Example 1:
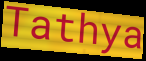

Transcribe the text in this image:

Tathya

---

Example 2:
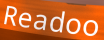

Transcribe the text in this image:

Readoo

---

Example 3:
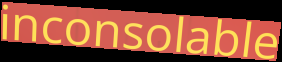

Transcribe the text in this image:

inconsolable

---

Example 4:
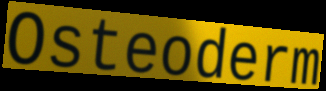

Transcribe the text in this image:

Osteoderm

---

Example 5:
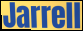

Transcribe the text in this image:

Jarrell